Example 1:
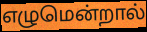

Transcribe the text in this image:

எழுமென்றால்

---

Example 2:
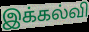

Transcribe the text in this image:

இக்கல்வி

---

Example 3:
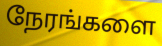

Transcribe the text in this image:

நேரங்களை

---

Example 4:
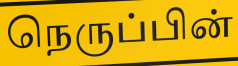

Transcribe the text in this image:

நெருப்பின்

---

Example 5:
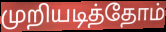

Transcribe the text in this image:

முறியடித்தோம்